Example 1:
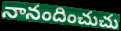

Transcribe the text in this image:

నానందించుచు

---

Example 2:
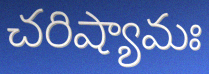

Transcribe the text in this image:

చరిష్యామః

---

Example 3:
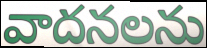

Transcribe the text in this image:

వాదనలను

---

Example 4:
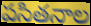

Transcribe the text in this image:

పసితనాల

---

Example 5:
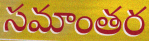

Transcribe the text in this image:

సమాంతర